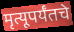
मृत्यूपर्यंतचे